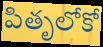
పితృలోకో